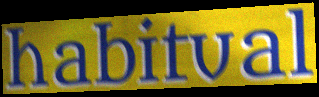
habitual